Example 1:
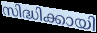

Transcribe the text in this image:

സിദ്ധിക്കായി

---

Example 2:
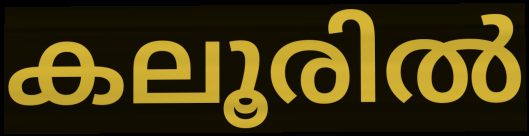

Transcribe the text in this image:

കലൂരിൽ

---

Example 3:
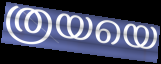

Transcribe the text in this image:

ത്രയയെ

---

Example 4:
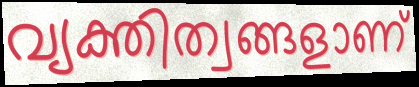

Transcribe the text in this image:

വ്യക്തിത്വങ്ങളാണ്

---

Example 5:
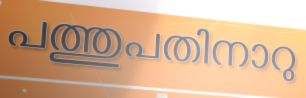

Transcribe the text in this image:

പത്തുപതിനാറു